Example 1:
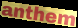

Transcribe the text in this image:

anthem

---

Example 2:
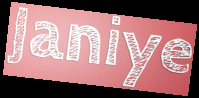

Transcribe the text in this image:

Janiye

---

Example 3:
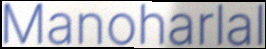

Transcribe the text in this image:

Manoharlal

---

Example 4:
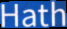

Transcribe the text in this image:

Hath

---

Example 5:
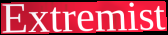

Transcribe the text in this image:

Extremist